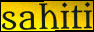
sahiti